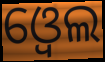
ଓ୍ବେଲ